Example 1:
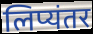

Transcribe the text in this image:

लिप्यंतर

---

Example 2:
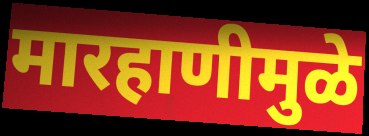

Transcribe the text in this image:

मारहाणीमुळे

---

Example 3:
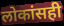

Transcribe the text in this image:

लोकांसही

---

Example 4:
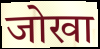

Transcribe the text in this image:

जोखा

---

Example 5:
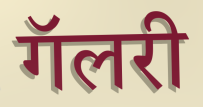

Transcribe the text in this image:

गॅलरी